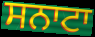
ਸਨਾਟਾ